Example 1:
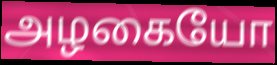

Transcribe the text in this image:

அழகையோ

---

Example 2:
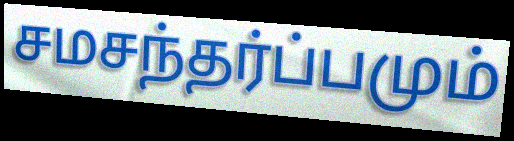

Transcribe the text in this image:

சமசந்தர்ப்பமும்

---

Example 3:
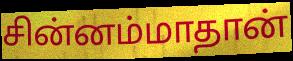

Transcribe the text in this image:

சின்னம்மாதான்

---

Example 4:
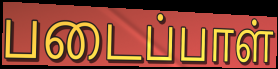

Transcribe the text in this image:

படைப்பாள்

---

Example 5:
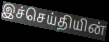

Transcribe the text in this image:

இச்செய்தியின்